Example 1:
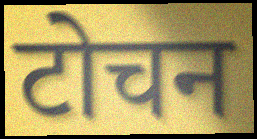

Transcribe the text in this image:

टोचन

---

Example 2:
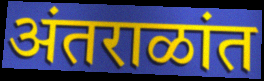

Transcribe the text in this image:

अंतराळांत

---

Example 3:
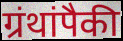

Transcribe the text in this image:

ग्रंथांपैकी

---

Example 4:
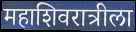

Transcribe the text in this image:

महाशिवरात्रीला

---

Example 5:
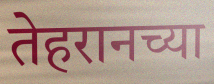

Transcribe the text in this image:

तेहरानच्या